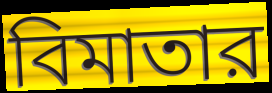
বিমাতার